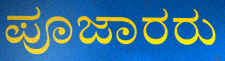
ಪೂಜಾರರು